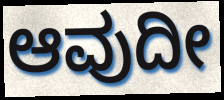
ಆವುದೀ